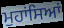
ਮੁਹਾਂਸਿਆਂ